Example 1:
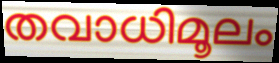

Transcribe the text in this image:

തവാധിമൂലം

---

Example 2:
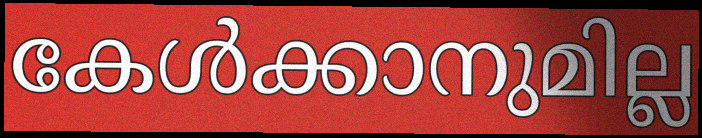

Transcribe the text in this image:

കേൾക്കാനുമില്ല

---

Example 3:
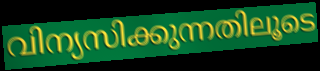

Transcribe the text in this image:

വിന്യസിക്കുന്നതിലൂടെ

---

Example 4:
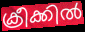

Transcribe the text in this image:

ക്രീക്കിൽ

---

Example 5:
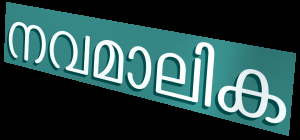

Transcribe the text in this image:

നവമാലിക